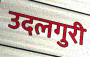
उदलगुरी